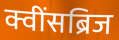
क्वींसब्रिज